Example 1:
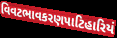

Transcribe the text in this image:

વિવટભાવકરણપાટિહારિયં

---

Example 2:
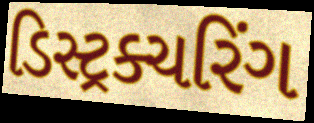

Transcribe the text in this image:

ડિસ્ટ્રક્ચરિંગ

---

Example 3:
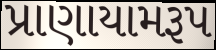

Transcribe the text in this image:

પ્રાણાયામરૂપ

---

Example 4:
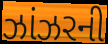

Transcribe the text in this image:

ઝાંઝરની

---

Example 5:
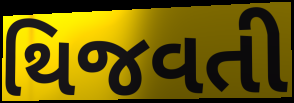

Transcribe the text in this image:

થિજવતી